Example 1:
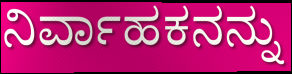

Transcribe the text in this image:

ನಿರ್ವಾಹಕನನ್ನು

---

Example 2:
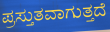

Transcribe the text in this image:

ಪ್ರಸ್ತುತವಾಗುತ್ತದೆ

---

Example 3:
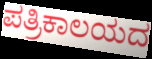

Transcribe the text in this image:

ಪತ್ರಿಕಾಲಯದ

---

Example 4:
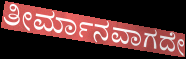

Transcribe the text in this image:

ತೀರ್ಮಾನವಾಗದೇ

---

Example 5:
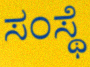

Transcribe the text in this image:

ಸಂಸ್ಥೆ